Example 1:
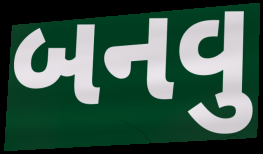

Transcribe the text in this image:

બનવુ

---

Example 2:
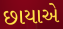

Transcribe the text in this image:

છાયાએ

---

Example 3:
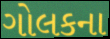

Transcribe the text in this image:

ગોલકના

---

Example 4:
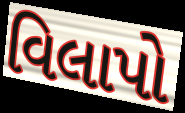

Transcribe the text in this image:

વિલાપો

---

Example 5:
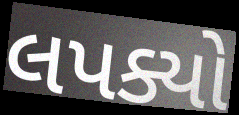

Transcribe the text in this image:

લપક્યો